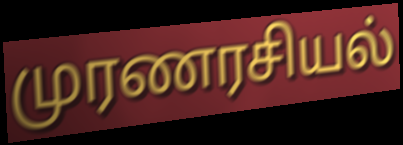
முரணரசியல்